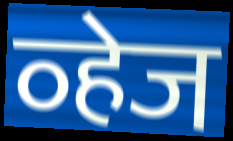
व्हेज